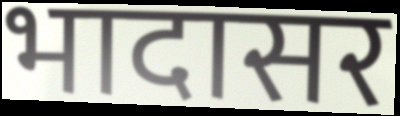
भादासर